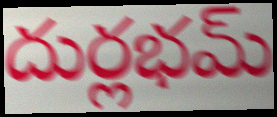
దుర్లభమ్